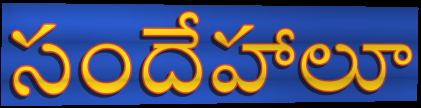
సందేహాలూ